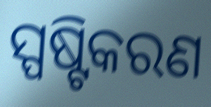
ସ୍ପଷ୍ଟିକରଣ